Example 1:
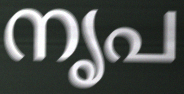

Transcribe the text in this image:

നൃപ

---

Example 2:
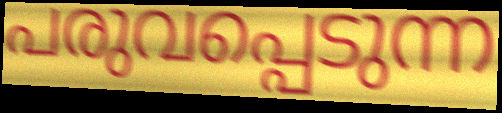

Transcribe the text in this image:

പരുവപ്പെടുന്ന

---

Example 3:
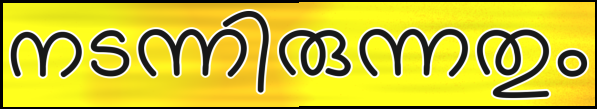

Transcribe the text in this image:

നടന്നിരുന്നതും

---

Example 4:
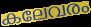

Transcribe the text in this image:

കലേവരം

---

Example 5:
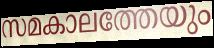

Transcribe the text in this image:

സമകാലത്തേയും